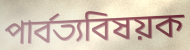
পার্বত্যবিষয়ক